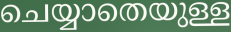
ചെയ്യാതെയുള്ള